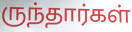
ருந்தார்கள்